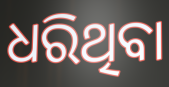
ଧରିଥିବା